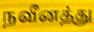
நவீனத்து